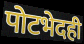
पोटभेदही